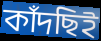
কাঁদছিই